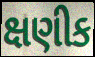
ક્ષણીક